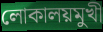
লোকালয়মুখী